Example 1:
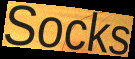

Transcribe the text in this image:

Socks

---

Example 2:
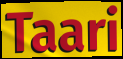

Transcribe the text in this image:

Taari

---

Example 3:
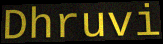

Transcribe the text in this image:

Dhruvi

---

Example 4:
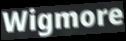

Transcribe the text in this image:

Wigmore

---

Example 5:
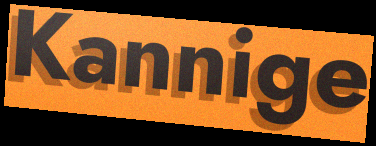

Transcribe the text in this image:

Kannige